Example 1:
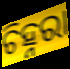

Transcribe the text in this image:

ଚିହ୍ନରା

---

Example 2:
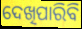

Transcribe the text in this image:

ଦେଖିପାରିବି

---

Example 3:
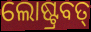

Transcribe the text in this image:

ଲୋଷ୍ଟ୍ରବତ୍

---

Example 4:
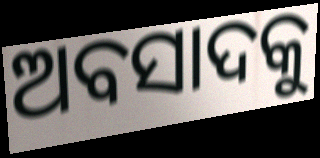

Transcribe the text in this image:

ଅବସାଦକୁ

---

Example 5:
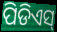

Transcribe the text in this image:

ପିଡିଏସ୍